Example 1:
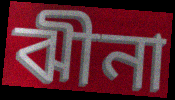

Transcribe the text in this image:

ঝীনা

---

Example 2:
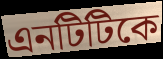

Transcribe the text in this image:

এনটিটিকে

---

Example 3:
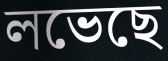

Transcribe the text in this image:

লভেছে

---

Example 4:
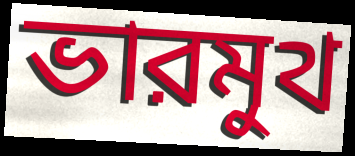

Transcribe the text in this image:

ভারমুথ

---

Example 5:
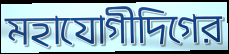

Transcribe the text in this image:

মহাযোগীদিগের